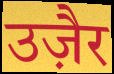
उज़ैर